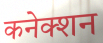
कनेक्‍शन